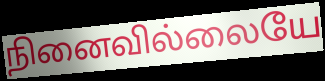
நினைவில்லையே